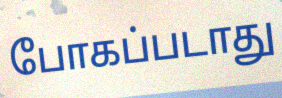
போகப்படாது